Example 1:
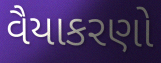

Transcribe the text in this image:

વૈયાકરણો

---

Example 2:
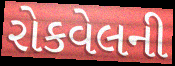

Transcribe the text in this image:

રોકવેલની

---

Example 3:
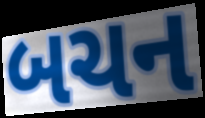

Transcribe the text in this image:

બચન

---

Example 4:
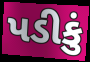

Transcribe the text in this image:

પડીકું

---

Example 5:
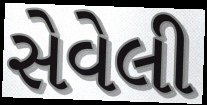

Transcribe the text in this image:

સેવેલી